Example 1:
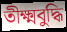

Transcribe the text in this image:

তীক্ষ্মবুদ্ধি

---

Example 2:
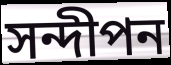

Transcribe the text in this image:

সন্দীপন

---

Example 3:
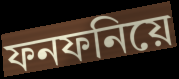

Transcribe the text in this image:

ফনফনিয়ে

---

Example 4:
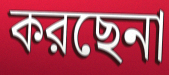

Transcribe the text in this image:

করছেনা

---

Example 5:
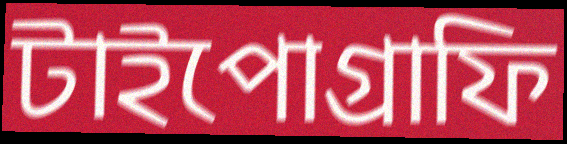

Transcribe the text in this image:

টাইপোগ্রাফি